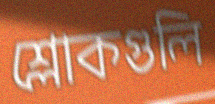
শ্লোকগুলি